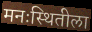
मनःस्थितीला